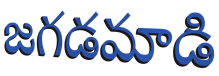
జగడమాడి